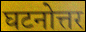
घटनोत्तर